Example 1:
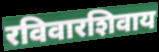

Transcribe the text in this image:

रविवारशिवाय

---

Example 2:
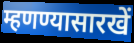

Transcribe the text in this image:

म्हणण्यासारखें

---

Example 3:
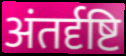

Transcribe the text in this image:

अंतर्दृष्टि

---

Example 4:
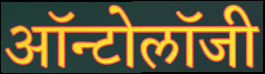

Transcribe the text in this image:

ऑन्टोलॉजी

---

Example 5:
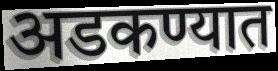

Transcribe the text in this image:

अडकण्यात